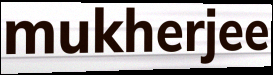
mukherjee